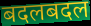
बदलबदल